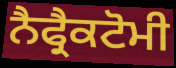
ਨੈਫ੍ਰੈਕਟੋਮੀ